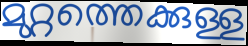
മുറ്റത്തെക്കുള്ള